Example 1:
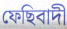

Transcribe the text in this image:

ফেছিবাদী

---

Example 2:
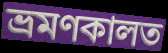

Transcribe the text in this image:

ভ্ৰমণকালত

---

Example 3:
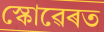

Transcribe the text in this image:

স্কোৱেৰত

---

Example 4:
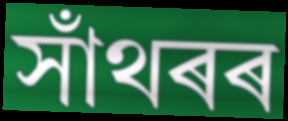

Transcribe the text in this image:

সাঁথৰৰ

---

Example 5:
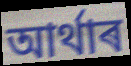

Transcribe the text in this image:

আৰ্থাৰ